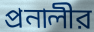
প্রনালীর